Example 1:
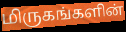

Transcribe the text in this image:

மிருகங்களின்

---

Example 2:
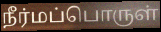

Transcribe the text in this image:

நீர்மப்பொருள்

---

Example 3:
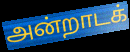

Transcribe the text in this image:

அன்றாடக்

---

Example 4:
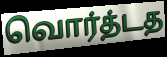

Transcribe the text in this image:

வொர்த்டத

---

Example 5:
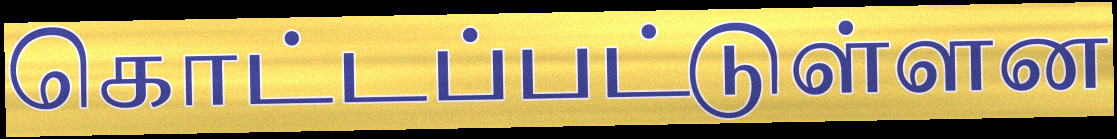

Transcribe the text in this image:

கொட்டப்பட்டுள்ளன